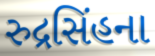
રુદ્રસિંહના